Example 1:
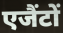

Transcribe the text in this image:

एजैंटों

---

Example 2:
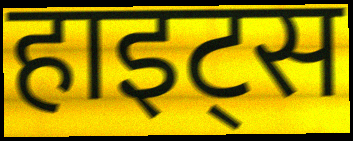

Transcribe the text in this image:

हाइट्स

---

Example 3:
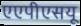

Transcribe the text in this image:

एएपीएसयू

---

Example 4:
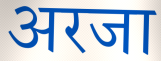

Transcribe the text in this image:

अरजा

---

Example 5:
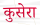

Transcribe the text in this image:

कुसेरा